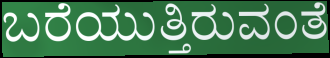
ಬರೆಯುತ್ತಿರುವಂತೆ